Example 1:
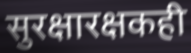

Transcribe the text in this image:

सुरक्षारक्षकही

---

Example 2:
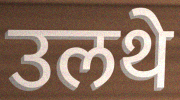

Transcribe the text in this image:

उलथे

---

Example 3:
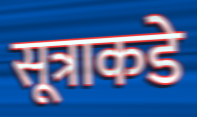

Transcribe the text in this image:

सूत्राकडे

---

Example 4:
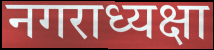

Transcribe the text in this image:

नगराध्यक्षा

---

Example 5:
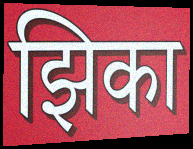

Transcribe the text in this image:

झिका